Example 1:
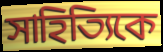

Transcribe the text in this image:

সাহিত্যিকে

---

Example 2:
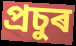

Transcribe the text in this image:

প্ৰচুৰ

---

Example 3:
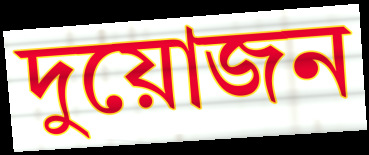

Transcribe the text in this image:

দুয়োজন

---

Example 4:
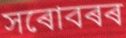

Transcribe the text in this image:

সৰোবৰৰ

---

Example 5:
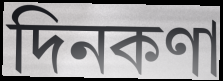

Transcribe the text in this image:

দিনকণা